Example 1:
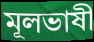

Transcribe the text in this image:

মূলভাষী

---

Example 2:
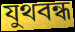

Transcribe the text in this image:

যুথবন্ধ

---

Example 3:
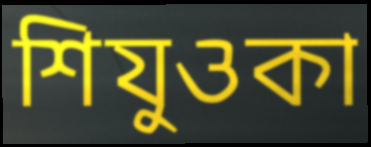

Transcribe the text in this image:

শিযুওকা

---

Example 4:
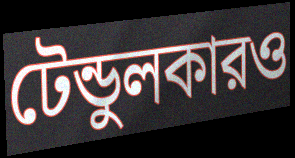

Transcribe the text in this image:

টেন্ডুলকারও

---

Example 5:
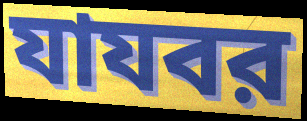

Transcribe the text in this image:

যাযবর